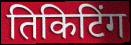
तिकिटिंग